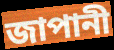
জাপানী